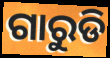
ଗାରୁଡି